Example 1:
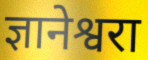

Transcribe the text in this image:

ज्ञानेश्वरा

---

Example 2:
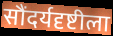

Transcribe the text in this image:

सौंदर्यदृष्टीला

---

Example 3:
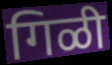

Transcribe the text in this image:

गिळी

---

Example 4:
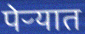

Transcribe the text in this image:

पेऱ्यात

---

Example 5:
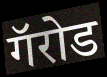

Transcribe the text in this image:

गॅरोड